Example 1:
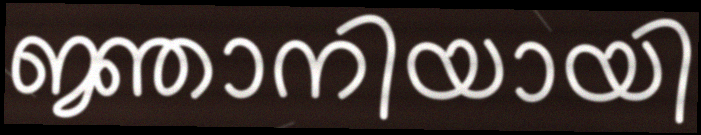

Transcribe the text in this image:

ജ്ഞാനിയായി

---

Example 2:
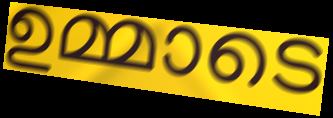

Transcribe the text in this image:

ഉമ്മാടെ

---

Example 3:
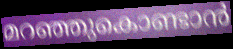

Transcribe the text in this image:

മറഞ്ഞുകൊണ്ടാൻ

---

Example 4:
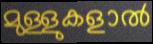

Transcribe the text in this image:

മുള്ളുകളാൽ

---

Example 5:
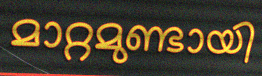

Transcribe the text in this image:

മാറ്റമുണ്ടായി